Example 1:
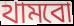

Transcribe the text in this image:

থামবো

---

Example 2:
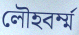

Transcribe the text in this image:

লৌহবর্ম্ম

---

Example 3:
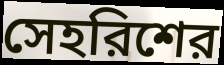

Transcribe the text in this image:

সেহরিশের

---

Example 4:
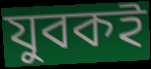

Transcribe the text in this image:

যুবকই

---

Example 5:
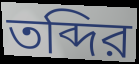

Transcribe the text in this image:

তব্দির